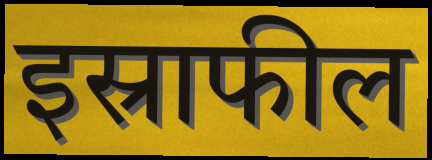
इस्राफील